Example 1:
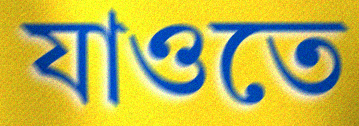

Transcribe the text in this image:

যাওতে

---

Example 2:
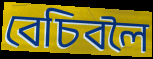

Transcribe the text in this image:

বেচিবলৈ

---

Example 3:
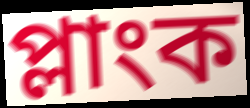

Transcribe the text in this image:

প্লাংক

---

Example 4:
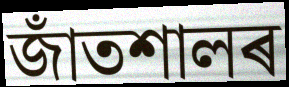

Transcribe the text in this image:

জাঁতশালৰ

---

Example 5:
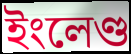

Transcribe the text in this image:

ইংলেণ্ড